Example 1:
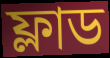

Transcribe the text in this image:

ফ্লাড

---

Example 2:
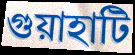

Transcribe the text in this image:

গুয়াহাটি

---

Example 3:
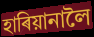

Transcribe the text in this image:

হাৰিয়ানালৈ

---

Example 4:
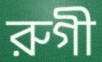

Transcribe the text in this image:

ৰুগী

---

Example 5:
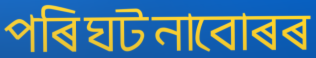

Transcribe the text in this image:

পৰিঘটনাবোৰৰ